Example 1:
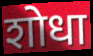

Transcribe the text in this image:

शोधा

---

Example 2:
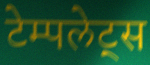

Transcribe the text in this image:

टेम्पलेट्स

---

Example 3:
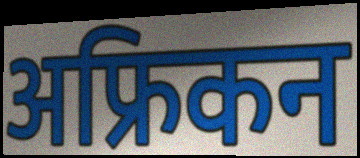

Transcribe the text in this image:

अफ्रिकन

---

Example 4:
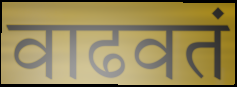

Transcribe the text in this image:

वाढवतं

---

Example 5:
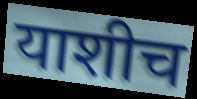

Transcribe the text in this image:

याशीच